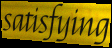
satisfying